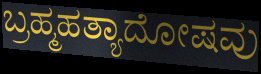
ಬ್ರಹ್ಮಹತ್ಯಾದೋಷವು